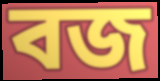
বজ